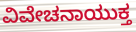
ವಿವೇಚನಾಯುಕ್ತ